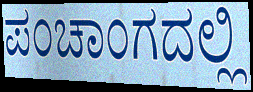
ಪಂಚಾಂಗದಲ್ಲಿ